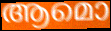
ആമൊ